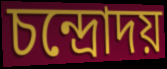
চন্দ্রোদয়